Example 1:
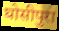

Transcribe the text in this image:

घोसीपुरा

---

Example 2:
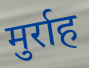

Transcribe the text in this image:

मुर्राह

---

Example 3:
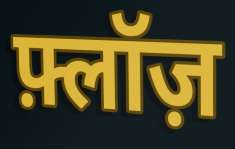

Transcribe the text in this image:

फ़्लॉज़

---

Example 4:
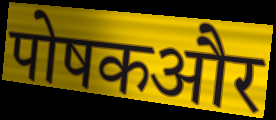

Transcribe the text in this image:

पोषकऔर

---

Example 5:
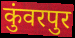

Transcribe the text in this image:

कुंवरपुर